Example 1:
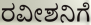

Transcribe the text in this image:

ರವೀಶನಿಗೆ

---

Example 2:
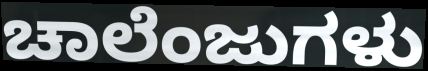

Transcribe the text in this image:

ಚಾಲೆಂಜುಗಳು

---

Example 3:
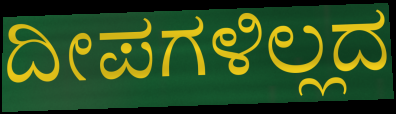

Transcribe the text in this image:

ದೀಪಗಳಿಲ್ಲದ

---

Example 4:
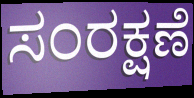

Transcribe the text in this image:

ಸಂರಕ್ಷಣೆ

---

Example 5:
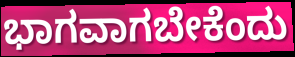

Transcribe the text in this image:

ಭಾಗವಾಗಬೇಕೆಂದು